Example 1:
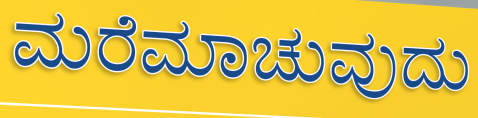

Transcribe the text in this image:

ಮರೆಮಾಚುವುದು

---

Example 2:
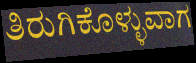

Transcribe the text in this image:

ತಿರುಗಿಕೊಳ್ಳುವಾಗ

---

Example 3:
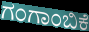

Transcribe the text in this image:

ಗಂಗಾಂಬಿಕೆ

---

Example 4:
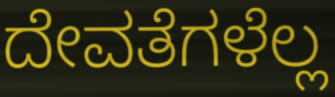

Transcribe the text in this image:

ದೇವತೆಗಳೆಲ್ಲ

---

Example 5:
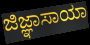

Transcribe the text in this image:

ಜಿಜ್ಞಾಸಾಯಾ